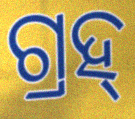
ଗ୍ରହ୍